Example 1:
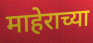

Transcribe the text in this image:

माहेराच्या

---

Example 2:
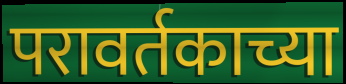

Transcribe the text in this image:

परावर्तकाच्या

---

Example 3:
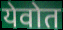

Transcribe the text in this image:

येवोत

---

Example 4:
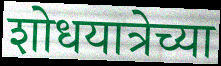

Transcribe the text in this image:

शोधयात्रेच्या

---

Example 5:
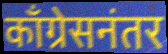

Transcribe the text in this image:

काँग्रेसनंतर